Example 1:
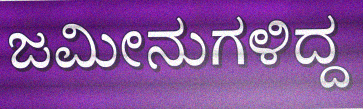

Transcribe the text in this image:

ಜಮೀನುಗಳಿದ್ದ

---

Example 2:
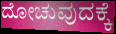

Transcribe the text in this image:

ದೋಚುವುದಕ್ಕೆ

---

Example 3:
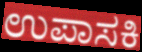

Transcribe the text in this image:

ಉಪಾಸಕಿ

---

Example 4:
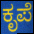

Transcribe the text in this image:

ಕೃಪೆ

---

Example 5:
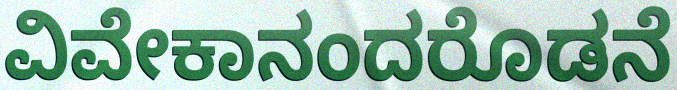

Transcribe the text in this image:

ವಿವೇಕಾನಂದರೊಡನೆ